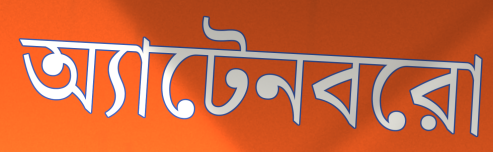
অ্যাটেনবরো